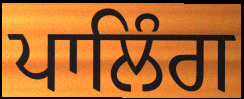
ਪਾਲਿੰਗ